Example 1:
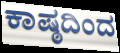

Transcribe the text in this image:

ಕಾಷ್ಠದಿಂದ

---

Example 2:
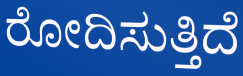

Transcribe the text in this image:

ರೋದಿಸುತ್ತಿದೆ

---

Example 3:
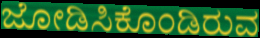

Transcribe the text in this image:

ಜೋಡಿಸಿಕೊಂಡಿರುವ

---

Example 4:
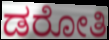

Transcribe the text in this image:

ಡರೋತಿ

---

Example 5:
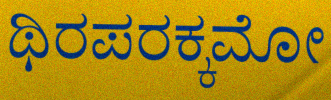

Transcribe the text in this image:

ಥಿರಪರಕ್ಕಮೋ